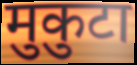
मुकुटा